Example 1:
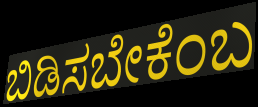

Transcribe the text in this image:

ಬಿಡಿಸಬೇಕೆಂಬ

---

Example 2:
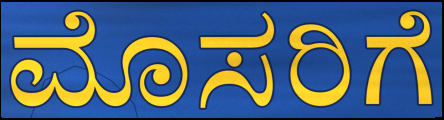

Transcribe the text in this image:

ಮೊಸರಿಗೆ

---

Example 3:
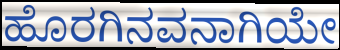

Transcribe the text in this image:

ಹೊರಗಿನವನಾಗಿಯೇ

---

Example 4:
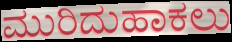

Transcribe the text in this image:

ಮುರಿದುಹಾಕಲು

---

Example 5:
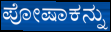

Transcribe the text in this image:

ಪೋಷಾಕನ್ನು